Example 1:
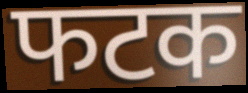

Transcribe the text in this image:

फटक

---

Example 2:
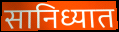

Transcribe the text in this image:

सानिध्यात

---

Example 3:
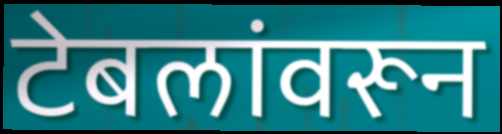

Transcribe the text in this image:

टेबलांवरून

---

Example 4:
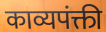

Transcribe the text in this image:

काव्यपंक्ती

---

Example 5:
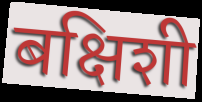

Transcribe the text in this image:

बक्षिशी